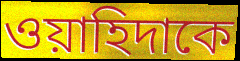
ওয়াহিদাকে